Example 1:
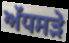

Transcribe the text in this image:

ਅੱਧਸੜੇ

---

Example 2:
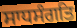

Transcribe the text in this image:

ਸਾਧਸੰਗਤਿ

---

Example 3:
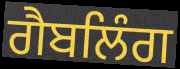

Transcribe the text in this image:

ਗੈਬਲਿੰਗ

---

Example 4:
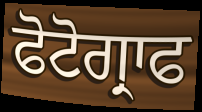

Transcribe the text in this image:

ਫੋਟੋਗ੍ਰਾਫ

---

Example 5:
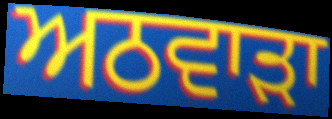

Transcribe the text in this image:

ਅਠਵਾੜਾ